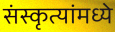
संस्कृत्यांमध्ये